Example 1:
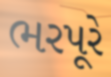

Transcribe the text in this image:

ભરપૂરે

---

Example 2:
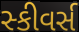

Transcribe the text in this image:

સ્કીવર્સ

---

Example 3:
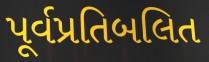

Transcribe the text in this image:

પૂર્વપ્રતિબલિત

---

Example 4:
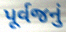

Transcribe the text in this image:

પૂર્વજનું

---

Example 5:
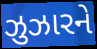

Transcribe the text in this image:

ઝુઝારને